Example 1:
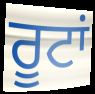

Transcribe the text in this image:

ਰੂਟਾਂ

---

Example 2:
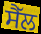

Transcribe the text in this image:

ਸੈੱਲ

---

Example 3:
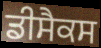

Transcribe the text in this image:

ਡੀਸੈਕਸ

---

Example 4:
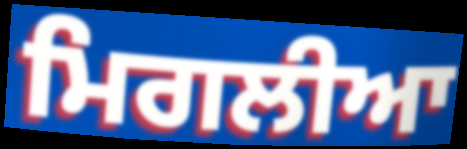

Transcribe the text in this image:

ਮਿਗਲੀਆ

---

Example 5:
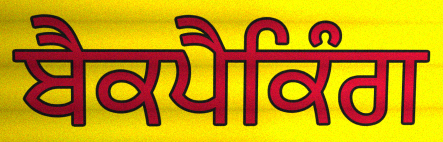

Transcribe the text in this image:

ਬੈਕਪੈਕਿੰਗ